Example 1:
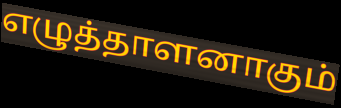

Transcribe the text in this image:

எழுத்தாளனாகும்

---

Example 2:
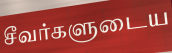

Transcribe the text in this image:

சீவர்களுடைய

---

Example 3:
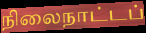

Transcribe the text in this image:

நிலைநாட்டப்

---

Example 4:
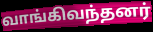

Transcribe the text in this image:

வாங்கிவந்தனர்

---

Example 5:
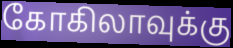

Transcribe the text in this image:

கோகிலாவுக்கு